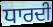
ਧਾਰਦੀ